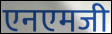
एनएमजी